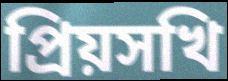
প্রিয়সখি